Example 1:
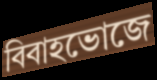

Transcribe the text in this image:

বিবাহভোজে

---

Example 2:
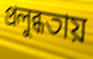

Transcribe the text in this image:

প্রলুব্ধতায়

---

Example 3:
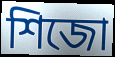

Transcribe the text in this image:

শিজো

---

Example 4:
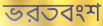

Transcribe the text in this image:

ভরতবংশ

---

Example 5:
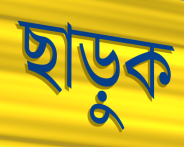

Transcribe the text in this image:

ছাড়ুক